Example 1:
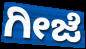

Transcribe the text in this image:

ಗೀಜೆ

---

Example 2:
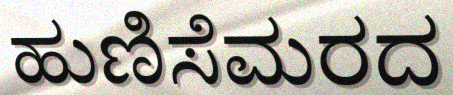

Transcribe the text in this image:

ಹುಣಿಸೆಮರದ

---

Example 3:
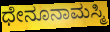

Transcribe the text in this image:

ಧೇನೂನಾಮಸ್ಮಿ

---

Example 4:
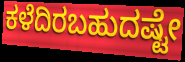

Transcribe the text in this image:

ಕಳೆದಿರಬಹುದಷ್ಟೇ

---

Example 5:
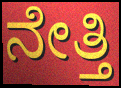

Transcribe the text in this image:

ನೇತ್ತಿ